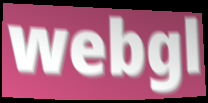
webgl